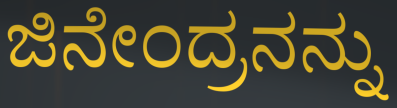
ಜಿನೇಂದ್ರನನ್ನು